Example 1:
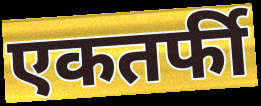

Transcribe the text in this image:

एकतर्फी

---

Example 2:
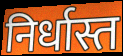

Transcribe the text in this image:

निर्धास्त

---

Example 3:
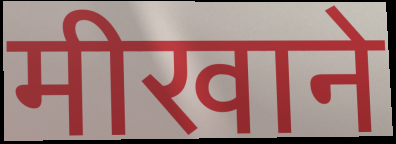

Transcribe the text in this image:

मीखाने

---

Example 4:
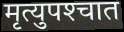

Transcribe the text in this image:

मृत्युपश्‍चात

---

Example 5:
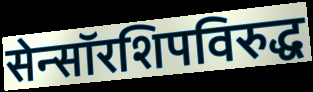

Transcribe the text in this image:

सेन्सॉरशिपविरुद्ध